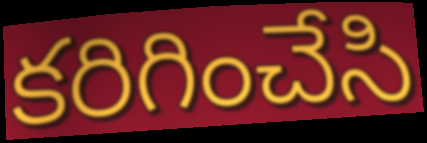
కరిగించేసి